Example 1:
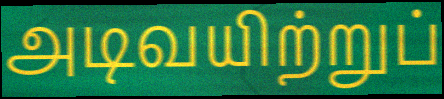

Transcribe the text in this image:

அடிவயிற்றுப்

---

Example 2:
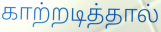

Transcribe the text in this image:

காற்றடித்தால்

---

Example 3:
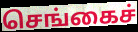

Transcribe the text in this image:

செங்கைச்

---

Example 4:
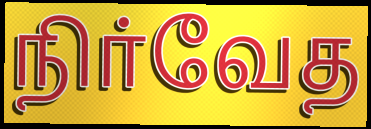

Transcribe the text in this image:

நிர்வேத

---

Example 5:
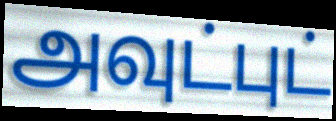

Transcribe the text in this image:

அவுட்புட்